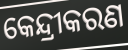
କେନ୍ଦ୍ରୀକରଣ